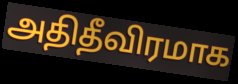
அதிதீவிரமாக